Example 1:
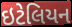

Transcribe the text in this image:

ઇટેલિયન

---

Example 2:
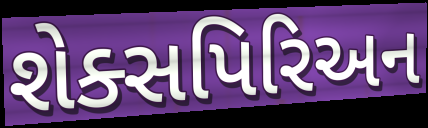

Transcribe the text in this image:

શેક્સપિરિઅન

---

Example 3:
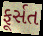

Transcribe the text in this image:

ફૂર્સત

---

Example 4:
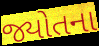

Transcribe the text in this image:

જ્યોતના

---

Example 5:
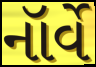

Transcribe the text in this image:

નૉર્વે